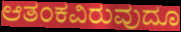
ಆತಂಕವಿರುವುದೂ